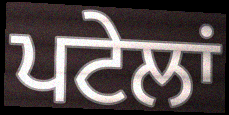
ਪਟੇਲਾਂ